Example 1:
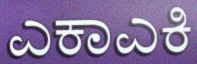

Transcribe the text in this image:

ಎಕಾಎಕಿ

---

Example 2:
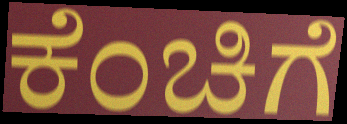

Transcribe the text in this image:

ಕೆಂಚಿಗೆ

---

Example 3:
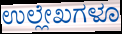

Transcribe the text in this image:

ಉಲ್ಲೇಖಗಳೂ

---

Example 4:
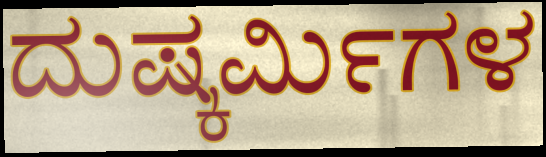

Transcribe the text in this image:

ದುಷ್ಕರ್ಮಿಗಳ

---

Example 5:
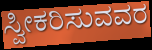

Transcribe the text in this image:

ಸ್ವೀಕರಿಸುವವರ